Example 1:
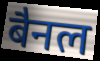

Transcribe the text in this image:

बैनल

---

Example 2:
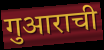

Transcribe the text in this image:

गुआराची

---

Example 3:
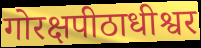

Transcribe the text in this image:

गोरक्षपीठाधीश्वर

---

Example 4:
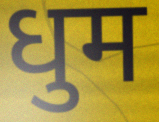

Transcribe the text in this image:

धुम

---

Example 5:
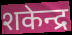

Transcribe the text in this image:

शकेन्द्र